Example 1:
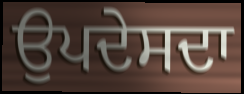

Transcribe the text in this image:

ਉਪਦੇਸਦਾ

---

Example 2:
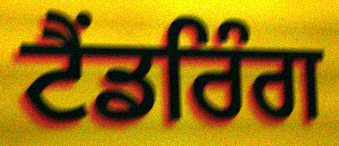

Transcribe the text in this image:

ਟੈਂਡਰਿੰਗ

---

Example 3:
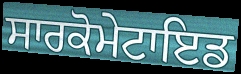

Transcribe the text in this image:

ਸਾਰਕੋਮੇਟਾਇਡ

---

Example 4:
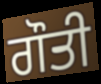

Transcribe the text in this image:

ਗੌਤੀ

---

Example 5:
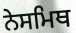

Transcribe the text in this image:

ਨੇਸਮਿਥ